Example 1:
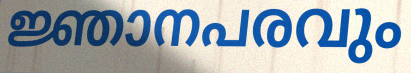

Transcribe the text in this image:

ജ്ഞാനപരവും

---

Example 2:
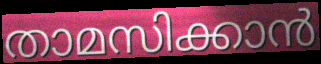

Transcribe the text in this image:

താമസിക്കാൻ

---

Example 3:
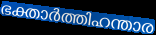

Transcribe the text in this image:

ഭക്താർത്തിഹന്താര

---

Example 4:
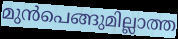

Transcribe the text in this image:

മുൻപെങ്ങുമില്ലാത്ത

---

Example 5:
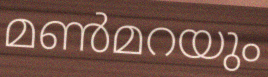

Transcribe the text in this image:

മൺമറയും